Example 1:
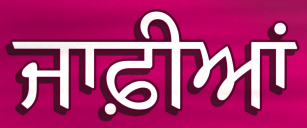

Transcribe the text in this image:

ਜਾਫ਼ੀਆਂ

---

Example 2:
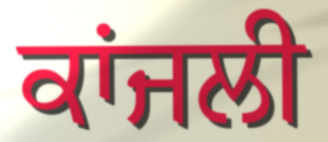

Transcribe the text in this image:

ਕਾਂਜਲੀ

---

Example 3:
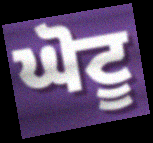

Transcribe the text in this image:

ਘੋਟੂ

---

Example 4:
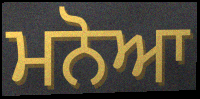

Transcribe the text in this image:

ਮਨੋਆ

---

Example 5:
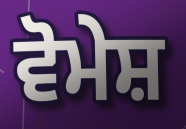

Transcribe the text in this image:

ਵੋਮੇਸ਼